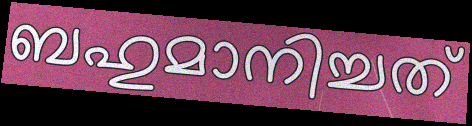
ബഹുമാനിച്ചത്